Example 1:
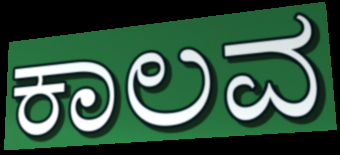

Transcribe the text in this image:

ಕಾಲವ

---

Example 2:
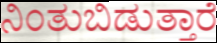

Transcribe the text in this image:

ನಿಂತುಬಿಡುತ್ತಾರೆ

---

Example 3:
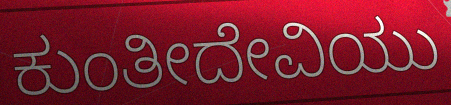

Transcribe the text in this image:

ಕುಂತೀದೇವಿಯು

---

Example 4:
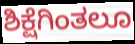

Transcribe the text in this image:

ಶಿಕ್ಷೆಗಿಂತಲೂ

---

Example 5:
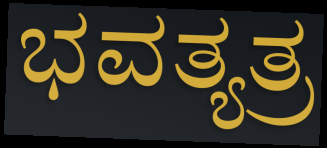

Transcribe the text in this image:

ಭವತ್ಯತ್ರ